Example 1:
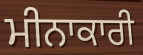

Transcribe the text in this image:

ਮੀਨਾਕਾਰੀ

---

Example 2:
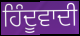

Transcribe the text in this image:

ਹਿੰਦੂਵਾਦੀ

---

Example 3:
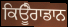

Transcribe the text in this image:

ਕਿਊੈਰਾਡਾਨ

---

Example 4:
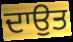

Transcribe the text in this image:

ਦਾਉਤ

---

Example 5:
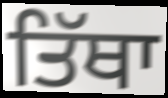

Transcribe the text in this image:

ਤਿੱਥਾ